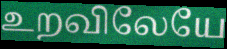
உறவிலேயே